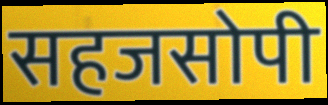
सहजसोपी